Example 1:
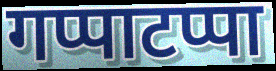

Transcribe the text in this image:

गप्पाटप्पा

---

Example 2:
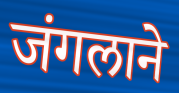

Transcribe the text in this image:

जंगलाने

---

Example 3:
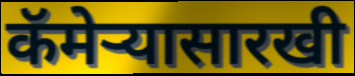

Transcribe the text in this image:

कॅमेऱ्यासारखी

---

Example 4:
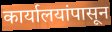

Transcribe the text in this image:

कार्यालयांपासून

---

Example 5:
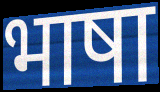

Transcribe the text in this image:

भाषा